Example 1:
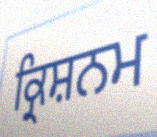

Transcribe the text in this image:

ਕ੍ਰਿਸ਼ਨਮ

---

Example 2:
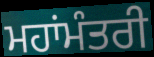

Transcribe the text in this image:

ਮਹਾਂਮੰਤਰੀ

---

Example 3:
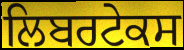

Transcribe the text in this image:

ਲਿਬਰਟੇਕਸ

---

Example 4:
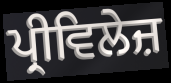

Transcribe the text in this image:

ਪ੍ਰੀਵਿਲੇਜ਼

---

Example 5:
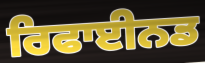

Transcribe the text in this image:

ਰਿਫਾਈਨਡ